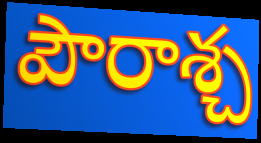
పౌరాశ్చ